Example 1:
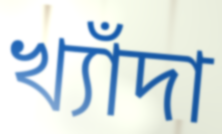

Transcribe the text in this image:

খ্যাঁদা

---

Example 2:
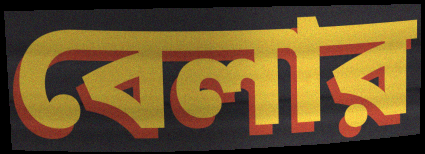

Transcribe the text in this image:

বেলার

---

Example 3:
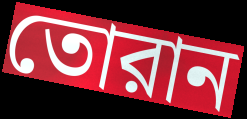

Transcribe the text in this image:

তোরান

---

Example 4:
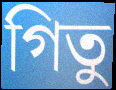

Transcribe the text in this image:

গিতু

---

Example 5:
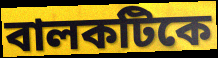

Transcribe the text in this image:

বালকটিকে